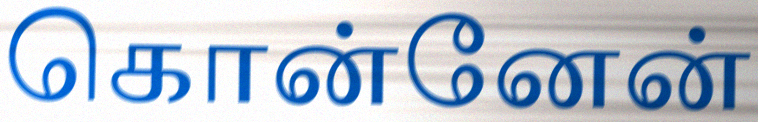
கொன்னேன்